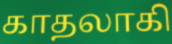
காதலாகி